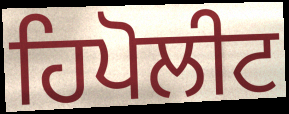
ਹਿਪੋਲੀਟ